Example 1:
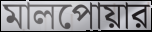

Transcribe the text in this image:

মালপোয়ার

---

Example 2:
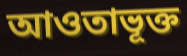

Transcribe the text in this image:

আওতাভূক্ত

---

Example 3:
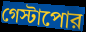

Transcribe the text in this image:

গেস্টাপোর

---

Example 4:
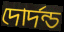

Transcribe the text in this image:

দোর্দন্ড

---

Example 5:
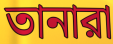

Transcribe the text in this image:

তানারা